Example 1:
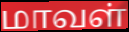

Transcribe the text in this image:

மாவள்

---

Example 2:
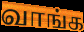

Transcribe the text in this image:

வாங்க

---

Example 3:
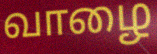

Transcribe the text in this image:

வாழை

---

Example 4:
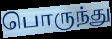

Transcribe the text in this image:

பொருந்து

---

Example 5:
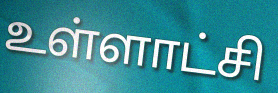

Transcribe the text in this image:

உள்ளாட்சி